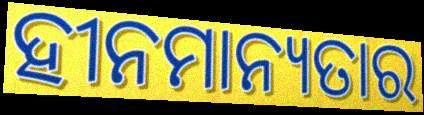
ହୀନମାନ୍ୟତାର